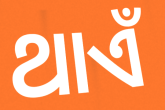
ଥାଏଁ